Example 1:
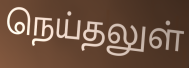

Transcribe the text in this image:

நெய்தலுள்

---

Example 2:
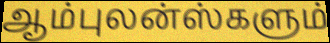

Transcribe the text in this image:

ஆம்புலன்ஸ்களும்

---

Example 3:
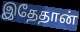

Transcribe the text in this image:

இதேதான்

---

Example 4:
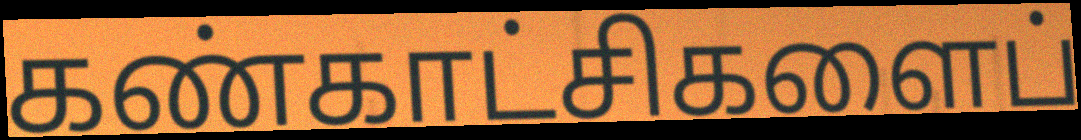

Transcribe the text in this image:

கண்காட்சிகளைப்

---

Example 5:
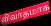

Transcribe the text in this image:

விவாதமாக